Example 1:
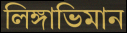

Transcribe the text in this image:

লিঙ্গাভিমান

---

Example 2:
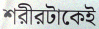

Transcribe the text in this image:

শরীরটাকেই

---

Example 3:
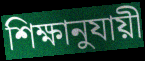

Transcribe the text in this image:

শিক্ষানুযায়ী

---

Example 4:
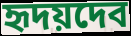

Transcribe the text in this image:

হৃদয়দেব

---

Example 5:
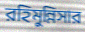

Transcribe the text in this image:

রহিমুন্নিসার